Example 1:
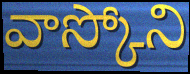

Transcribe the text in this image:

వాస్కోని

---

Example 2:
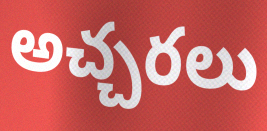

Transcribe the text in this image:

అచ్చరలు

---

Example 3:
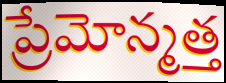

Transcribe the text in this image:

ప్రేమోన్మత్త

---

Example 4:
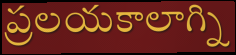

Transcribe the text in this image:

ప్రలయకాలాగ్ని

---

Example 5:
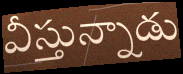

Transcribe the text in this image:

వీస్తున్నాడు